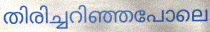
തിരിച്ചറിഞ്ഞപോലെ